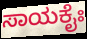
ಸಾಯಕೈಃ